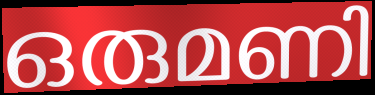
ഒരുമണി